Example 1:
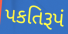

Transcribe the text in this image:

પકતિરૂપં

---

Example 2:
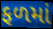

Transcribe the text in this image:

ફળમાં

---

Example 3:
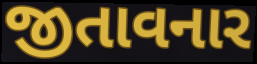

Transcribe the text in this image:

જીતાવનાર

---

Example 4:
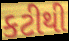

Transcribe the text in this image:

કટીથી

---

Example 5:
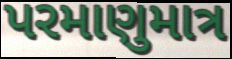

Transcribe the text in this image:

પરમાણુમાત્ર